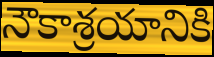
నౌకాశ్రయానికి